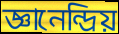
জ্ঞানেন্দ্ৰিয়